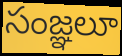
సంజ్ఞలూ